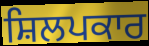
ਸ਼ਿਲਪਕਾਰ